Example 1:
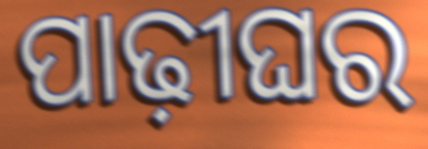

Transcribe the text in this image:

ପାଢ଼ୀଘର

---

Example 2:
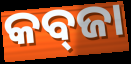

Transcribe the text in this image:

କବ୍‌ଜା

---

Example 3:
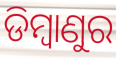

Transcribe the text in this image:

ଡିମ୍ବାଣୁର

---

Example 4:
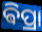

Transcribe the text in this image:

ଵିପ୍ରା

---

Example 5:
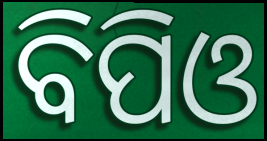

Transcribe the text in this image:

ବିପିଓ